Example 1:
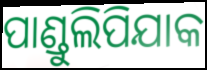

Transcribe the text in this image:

ପାଣ୍ଡୁଲିପିଯାକ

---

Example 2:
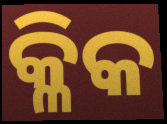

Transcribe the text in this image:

କ୍ଳିକ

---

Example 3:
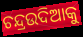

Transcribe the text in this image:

ଚନ୍ଦ୍ରଉଦିଆକୁ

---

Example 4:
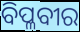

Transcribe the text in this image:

ବିପ୍ଳବୀର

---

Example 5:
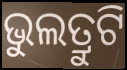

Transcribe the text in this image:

ଭୁଲତ୍ରୁଟି